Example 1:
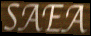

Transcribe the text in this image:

SAEA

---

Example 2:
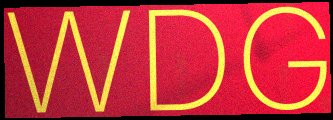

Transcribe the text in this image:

WDG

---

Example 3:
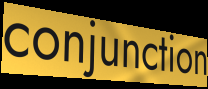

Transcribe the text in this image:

conjunction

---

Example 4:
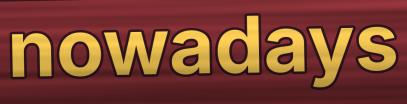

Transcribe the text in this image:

nowadays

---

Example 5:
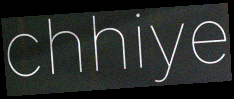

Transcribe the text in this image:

chhiye